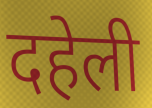
दहेली